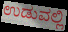
ಉಡುವಲ್ಲಿ